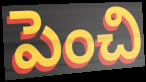
పెంచి